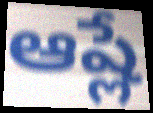
ఆష్లే